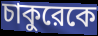
চাকুরেকে